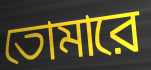
তোমারে